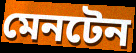
মেনটেন